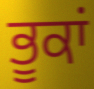
ਭੂਕਾਂ